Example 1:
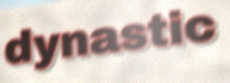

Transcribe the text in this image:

dynastic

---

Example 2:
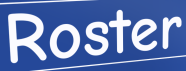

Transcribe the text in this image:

Roster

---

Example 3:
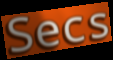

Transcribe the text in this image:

Secs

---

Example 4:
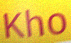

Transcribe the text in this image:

Kho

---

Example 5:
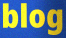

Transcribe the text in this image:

blog